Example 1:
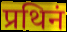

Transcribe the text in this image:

प्रथिनं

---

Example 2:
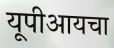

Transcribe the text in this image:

यूपीआयचा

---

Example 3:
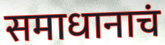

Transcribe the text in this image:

समाधानाचं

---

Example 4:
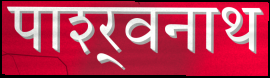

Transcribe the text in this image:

पाश्र्वनाथ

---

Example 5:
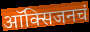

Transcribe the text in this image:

ऑक्सिजनचं